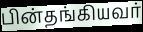
பின்தங்கியவர்